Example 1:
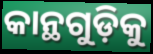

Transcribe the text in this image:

କାନ୍ଥଗୁଡ଼ିକୁ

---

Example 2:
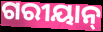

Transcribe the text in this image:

ଗରୀୟାନ୍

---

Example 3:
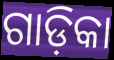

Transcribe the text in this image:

ଗାଡ଼ିକା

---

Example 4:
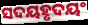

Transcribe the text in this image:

ସଦୟହୃଦୟଂ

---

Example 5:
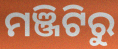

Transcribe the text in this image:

ମଞ୍ଜିଟିରୁ